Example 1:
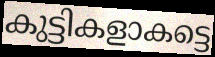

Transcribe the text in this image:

കുട്ടികളാകട്ടെ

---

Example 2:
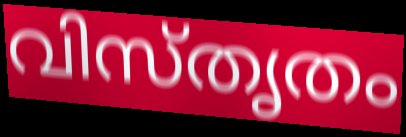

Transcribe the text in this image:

വിസ്തൃതം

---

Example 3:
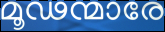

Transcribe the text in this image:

മൂഢന്മാരേ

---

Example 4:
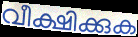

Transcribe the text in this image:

വീക്ഷിക്കുക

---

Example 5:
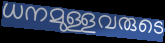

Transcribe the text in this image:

ധനമുള്ളവരുടെ